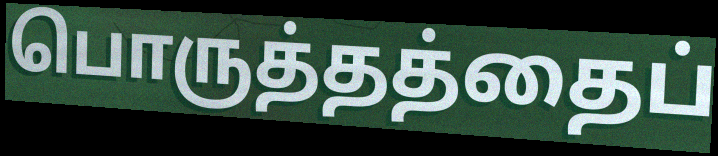
பொருத்தத்தைப்